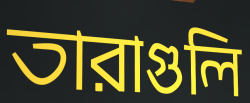
তারাগুলি